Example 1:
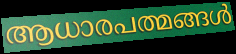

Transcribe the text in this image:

ആധാരപത്മങ്ങൾ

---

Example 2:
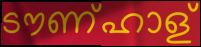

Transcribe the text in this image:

ടൗണ്ഹാള്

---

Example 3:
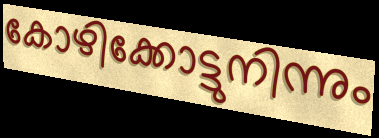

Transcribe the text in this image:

കോഴിക്കോട്ടുനിന്നും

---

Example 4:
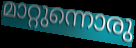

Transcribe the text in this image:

മാറ്റുന്നൊരു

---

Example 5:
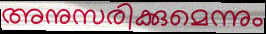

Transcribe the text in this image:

അനുസരിക്കുമെന്നും